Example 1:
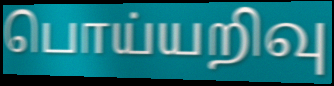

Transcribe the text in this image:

பொய்யறிவு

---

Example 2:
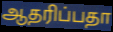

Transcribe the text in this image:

ஆதரிப்பதா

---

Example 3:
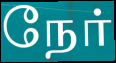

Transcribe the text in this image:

நேர்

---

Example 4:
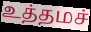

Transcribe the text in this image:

உத்தமச்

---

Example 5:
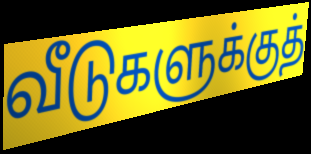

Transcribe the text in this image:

வீடுகளுக்குத்